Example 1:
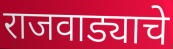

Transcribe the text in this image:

राजवाड्याचे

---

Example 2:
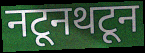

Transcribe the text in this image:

नटूनथटून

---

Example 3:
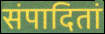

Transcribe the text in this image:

संपादितां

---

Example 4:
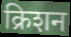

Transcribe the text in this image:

क्रिशन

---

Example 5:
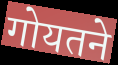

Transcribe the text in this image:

गोयतने